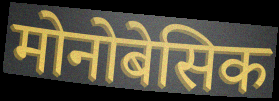
मोनोबेसिक